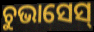
ଚୁଭାସେସ୍